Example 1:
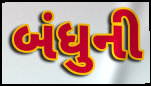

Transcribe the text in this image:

બંધુની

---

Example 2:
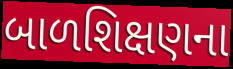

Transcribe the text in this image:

બાળશિક્ષણના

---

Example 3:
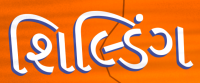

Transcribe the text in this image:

શિલ્ડિંગ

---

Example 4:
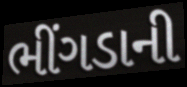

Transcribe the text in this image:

ભીંગડાની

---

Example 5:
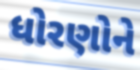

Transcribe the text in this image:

ધોરણોને